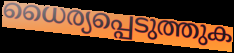
ധൈര്യപ്പെടുത്തുക